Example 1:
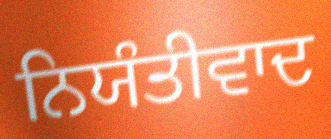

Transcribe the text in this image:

ਨਿਯੰਤੀਵਾਦ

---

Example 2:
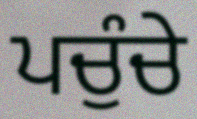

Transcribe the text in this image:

ਪਚੁੰਚੇ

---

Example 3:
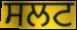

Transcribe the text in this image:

ਸਲਟ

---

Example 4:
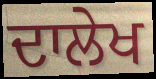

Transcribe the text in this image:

ਦਾਲੇਖ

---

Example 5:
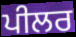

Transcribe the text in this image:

ਪੀਲਰ